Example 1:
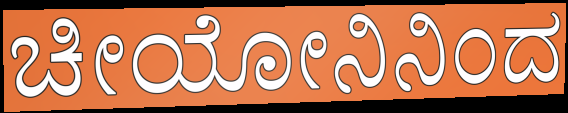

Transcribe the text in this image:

ಚೀಯೋನಿನಿಂದ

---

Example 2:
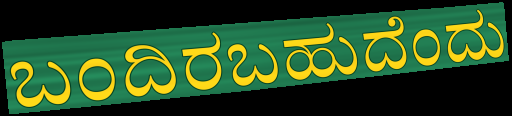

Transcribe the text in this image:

ಬಂದಿರಬಹುದೆಂದು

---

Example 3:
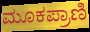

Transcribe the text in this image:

ಮೂಕಪ್ರಾಣಿ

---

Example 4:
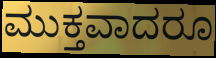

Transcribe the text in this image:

ಮುಕ್ತವಾದರೂ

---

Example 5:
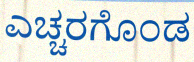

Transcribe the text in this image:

ಎಚ್ಚರಗೊಂಡ